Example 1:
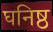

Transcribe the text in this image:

घनिष्ठ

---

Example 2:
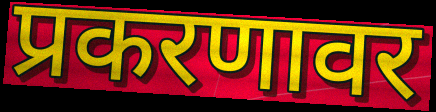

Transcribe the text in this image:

प्रकरणावर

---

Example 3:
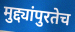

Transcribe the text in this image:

मुद्द्यांपुरतेच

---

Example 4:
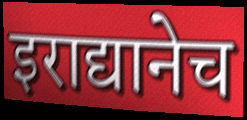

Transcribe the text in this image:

इराद्यानेच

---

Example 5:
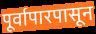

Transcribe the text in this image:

पूर्वापारपासून